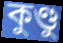
কুণ্ডু